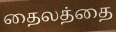
தைலத்தை